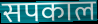
सपकाल